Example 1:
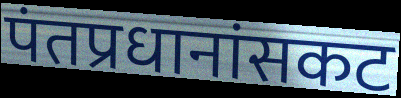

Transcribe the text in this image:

पंतप्रधानांसकट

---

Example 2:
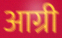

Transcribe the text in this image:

आग्री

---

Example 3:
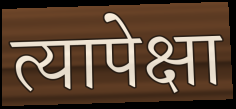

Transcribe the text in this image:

त्यापेक्षा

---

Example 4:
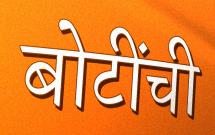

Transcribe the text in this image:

बोटींची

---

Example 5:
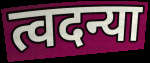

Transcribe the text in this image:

त्वदन्या